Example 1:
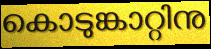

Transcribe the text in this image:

കൊടുങ്കാറ്റിനു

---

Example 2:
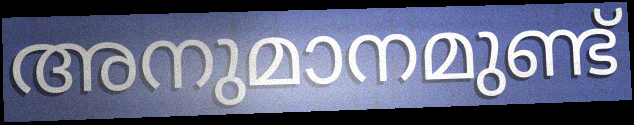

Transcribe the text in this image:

അനുമാനമുണ്ട്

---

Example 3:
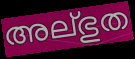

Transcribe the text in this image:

അല്ഭുത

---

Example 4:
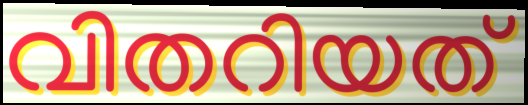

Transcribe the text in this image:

വിതറിയത്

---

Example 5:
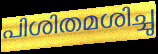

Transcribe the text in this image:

പിശിതമശിച്ചു